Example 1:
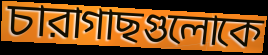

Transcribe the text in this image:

চারাগাছগুলোকে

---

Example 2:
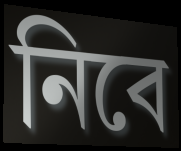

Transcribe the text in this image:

নিবে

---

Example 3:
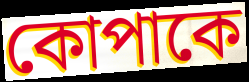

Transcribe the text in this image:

কোপাকে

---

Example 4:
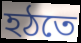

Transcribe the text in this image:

হঠতে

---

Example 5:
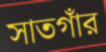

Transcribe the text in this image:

সাতগাঁর